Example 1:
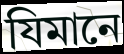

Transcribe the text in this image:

যিমানে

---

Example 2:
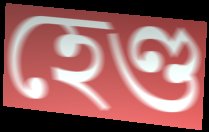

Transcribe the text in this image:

হেণ্ড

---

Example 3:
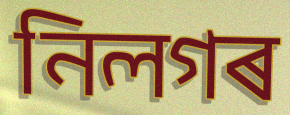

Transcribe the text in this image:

নিলগৰ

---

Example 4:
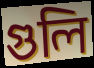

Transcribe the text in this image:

গুলি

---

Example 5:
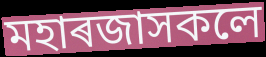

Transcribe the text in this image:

মহাৰজাসকলে